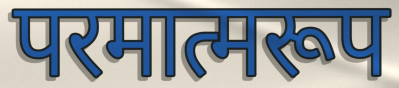
परमात्मरूप